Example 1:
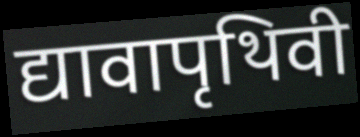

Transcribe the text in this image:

द्यावापृथिवी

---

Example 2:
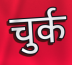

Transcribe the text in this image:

चुर्क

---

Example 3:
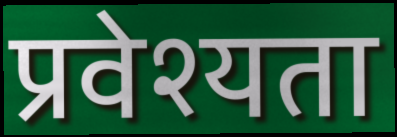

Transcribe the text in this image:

प्रवेश्यता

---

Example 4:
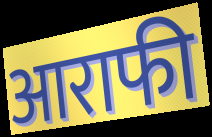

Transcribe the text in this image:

आराफी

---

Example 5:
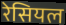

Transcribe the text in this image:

रेसियल